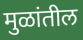
मुळांतील